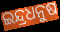
ଇନ୍ଦ୍ରଧନୁଷ